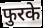
फुरके